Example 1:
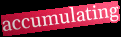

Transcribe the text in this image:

accumulating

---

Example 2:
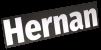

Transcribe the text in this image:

Hernan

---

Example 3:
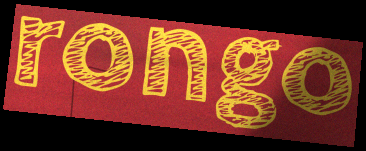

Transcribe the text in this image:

rongo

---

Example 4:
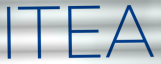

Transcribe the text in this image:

ITEA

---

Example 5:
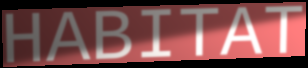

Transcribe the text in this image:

HABITAT